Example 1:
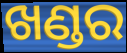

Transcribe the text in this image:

ଖଣ୍ଡର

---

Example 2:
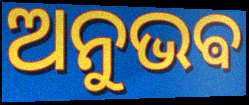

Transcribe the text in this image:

ଅନୁଭଵ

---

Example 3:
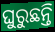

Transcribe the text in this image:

ଘୁରୁଛନ୍ତି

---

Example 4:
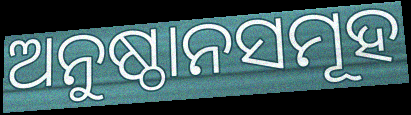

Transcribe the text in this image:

ଅନୁଷ୍ଠାନସମୂହ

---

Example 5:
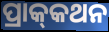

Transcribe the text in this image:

ପ୍ରାକ୍‍କଥନ